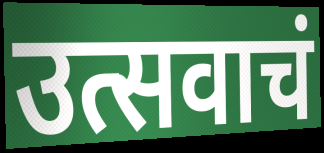
उत्सवाचं